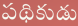
పథికుడు